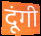
दूंगी